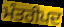
ਮੰਤਰੀਪਦ